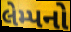
લેમ્પનો